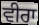
ਵੀਰਾ